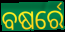
ବଷର୍ରେ